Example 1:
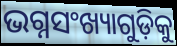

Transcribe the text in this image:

ଭଗ୍ନସଂଖ୍ୟାଗୁଡ଼ିକୁ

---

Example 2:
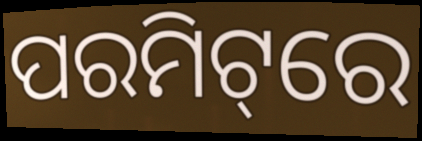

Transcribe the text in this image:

ପରମିଟ୍‌ରେ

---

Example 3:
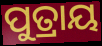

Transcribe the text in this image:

ପୁତ୍ରାୟ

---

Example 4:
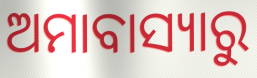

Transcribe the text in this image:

ଅମାବାସ୍ୟାରୁ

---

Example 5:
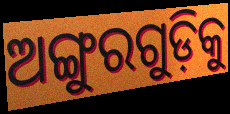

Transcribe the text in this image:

ଅଙ୍ଗୁରଗୁଡ଼ିକୁ